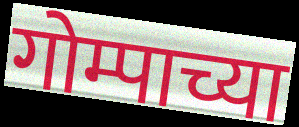
गोम्पाच्या